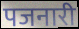
पजनारी